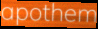
apothem